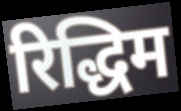
रिद्धिम